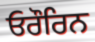
ਓਰੌਰਿਨ